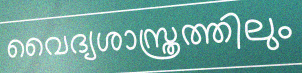
വൈദ്യശാസ്ത്രത്തിലും